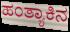
ಹಂತ್ಯಾಕಿನ